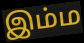
இம்ம